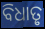
ବିଧାତୃ